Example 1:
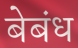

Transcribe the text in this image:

बेबंध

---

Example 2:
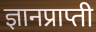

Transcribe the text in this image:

ज्ञानप्राप्ती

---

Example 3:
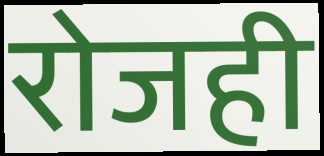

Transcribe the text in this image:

रोजही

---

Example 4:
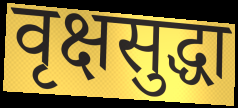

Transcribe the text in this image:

वृक्षसुद्धा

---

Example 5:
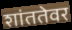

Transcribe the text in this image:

शांततेवर